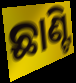
ଛାଣ୍ଟି